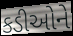
કડીઓને